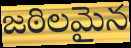
జఠిలమైన